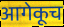
आगेकूच